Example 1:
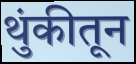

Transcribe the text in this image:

थुंकीतून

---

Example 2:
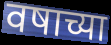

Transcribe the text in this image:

वषाच्या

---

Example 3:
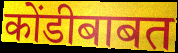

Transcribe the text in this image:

कोंडीबाबत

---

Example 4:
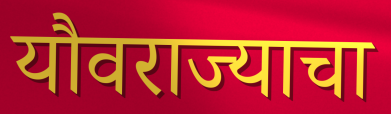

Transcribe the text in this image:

यौवराज्याचा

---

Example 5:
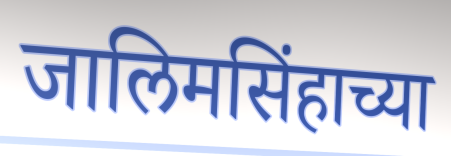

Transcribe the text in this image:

जालिमसिंहाच्या